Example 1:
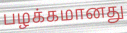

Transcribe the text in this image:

பழக்கமானது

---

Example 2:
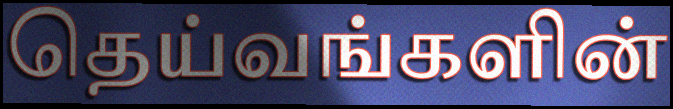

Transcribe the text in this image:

தெய்வங்களின்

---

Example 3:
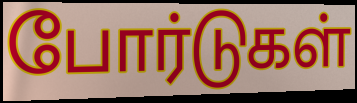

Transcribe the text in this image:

போர்டுகள்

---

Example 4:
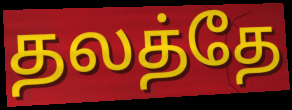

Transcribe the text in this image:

தலத்தே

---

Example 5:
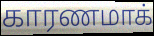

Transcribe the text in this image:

காரணமாக்